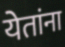
येतांना